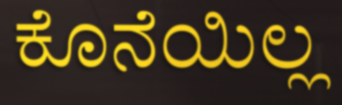
ಕೊನೆಯಿಲ್ಲ